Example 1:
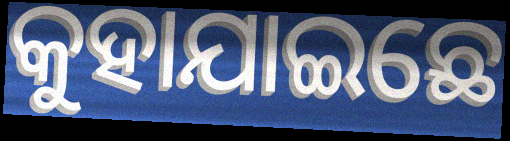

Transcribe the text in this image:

କୁହାଯାଇଛେ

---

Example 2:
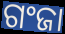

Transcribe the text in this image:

ଗଂଜା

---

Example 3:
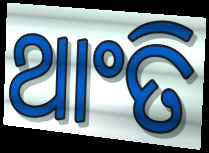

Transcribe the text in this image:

ଥାଂତି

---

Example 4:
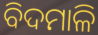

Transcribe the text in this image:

ବିଦମାଳି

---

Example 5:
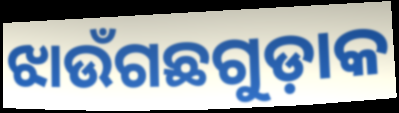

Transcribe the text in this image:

ଝାଉଁଗଛଗୁଡ଼ାକ